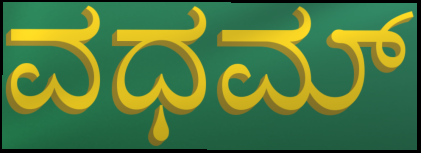
ವಧಮ್